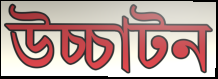
উচ্চাটন